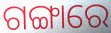
ଗଙ୍ଗାରେ